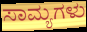
ಸಾಮ್ಯಗಳು